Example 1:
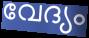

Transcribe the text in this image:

വേദ്യം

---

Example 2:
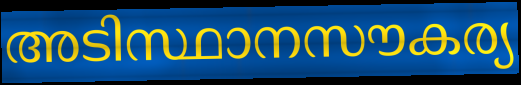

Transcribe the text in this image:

അടിസ്ഥാനസൗകര്യ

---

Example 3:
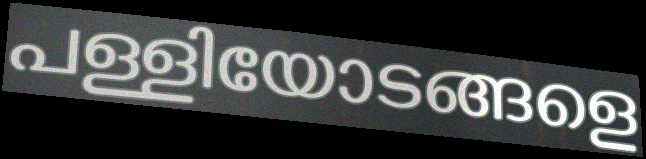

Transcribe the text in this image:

പള്ളിയോടങ്ങളെ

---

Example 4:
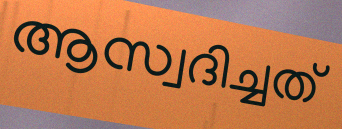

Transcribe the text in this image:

ആസ്വദിച്ചത്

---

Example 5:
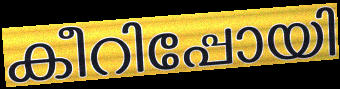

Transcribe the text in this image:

കീറിപ്പോയി